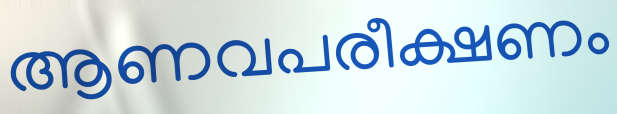
ആണവപരീക്ഷണം